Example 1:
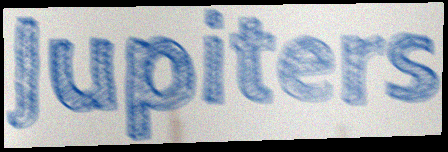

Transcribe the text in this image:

Jupiters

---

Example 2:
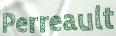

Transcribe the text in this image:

Perreault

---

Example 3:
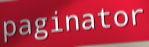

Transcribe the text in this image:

paginator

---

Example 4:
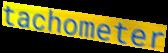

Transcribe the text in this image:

tachometer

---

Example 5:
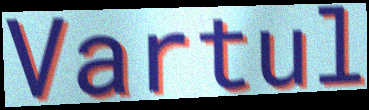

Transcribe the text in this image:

Vartul